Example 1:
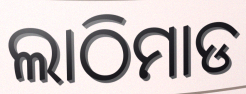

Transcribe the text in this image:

ଲାଠିମାଡ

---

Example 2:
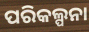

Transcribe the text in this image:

ପରିକଲ୍ପନା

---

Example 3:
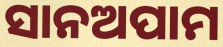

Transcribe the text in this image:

ସାନଅପାମ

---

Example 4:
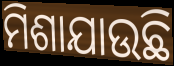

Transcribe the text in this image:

ମିଶାଯାଉଛି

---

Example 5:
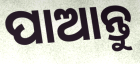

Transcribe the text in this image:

ପାଆନ୍ତୁ